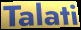
Talati